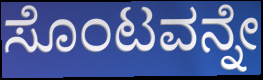
ಸೊಂಟವನ್ನೇ